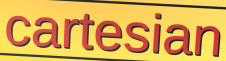
cartesian